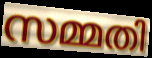
സമ്മതി